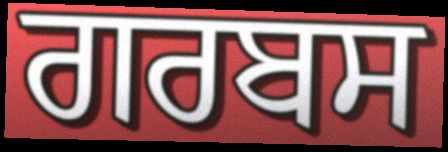
ਗਰਬਸ